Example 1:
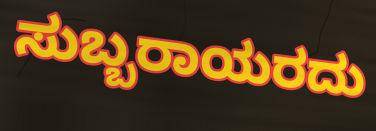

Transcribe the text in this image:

ಸುಬ್ಬರಾಯರದು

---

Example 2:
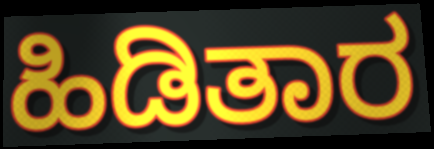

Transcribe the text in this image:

ಹಿಡಿತಾರ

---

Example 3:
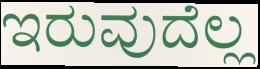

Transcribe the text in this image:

ಇರುವುದೆಲ್ಲ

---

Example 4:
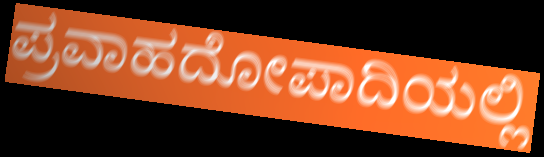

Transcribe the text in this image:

ಪ್ರವಾಹದೋಪಾದಿಯಲ್ಲಿ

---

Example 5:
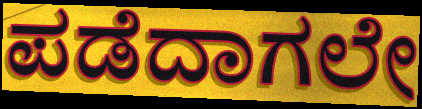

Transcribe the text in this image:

ಪಡೆದಾಗಲೇ